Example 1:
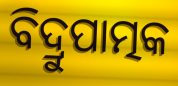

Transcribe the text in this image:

ବିଦ୍ରୁପାତ୍ମକ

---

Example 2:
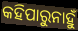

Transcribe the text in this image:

କହିପାରୁନାହୁଁ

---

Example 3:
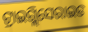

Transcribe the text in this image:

ଟ୍ରାଇଗ୍ଲିସେରାଇଡ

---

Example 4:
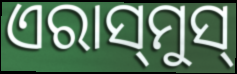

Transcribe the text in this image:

ଏରାସ୍‍ମୁସ୍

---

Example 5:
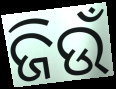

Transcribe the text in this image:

ଜିଉଁ